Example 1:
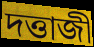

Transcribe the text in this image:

দত্তাজী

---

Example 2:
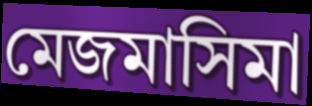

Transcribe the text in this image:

মেজমাসিমা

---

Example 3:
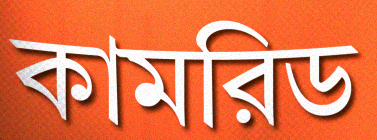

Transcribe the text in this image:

কামরিড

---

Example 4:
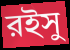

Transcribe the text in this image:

রইসু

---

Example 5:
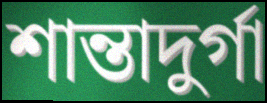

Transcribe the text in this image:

শান্তাদুর্গা